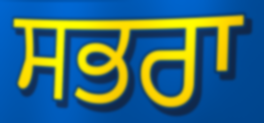
ਸਭਰਾ